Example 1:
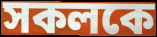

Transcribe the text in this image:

সকলকে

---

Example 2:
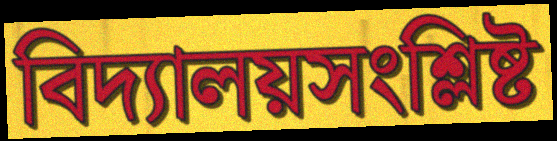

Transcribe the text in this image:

বিদ্যালয়সংশ্লিষ্ট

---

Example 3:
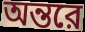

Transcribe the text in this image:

অন্তরে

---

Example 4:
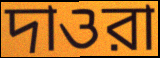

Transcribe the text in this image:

দাওরা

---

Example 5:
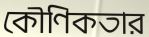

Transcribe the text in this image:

কৌণিকতার